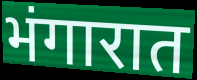
भंगारात